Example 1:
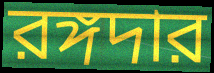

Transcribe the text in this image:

রঙ্গদার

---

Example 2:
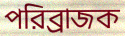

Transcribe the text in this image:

পরিব্রাজক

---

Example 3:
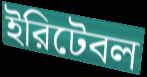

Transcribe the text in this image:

ইরিটেবল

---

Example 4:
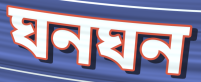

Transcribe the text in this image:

ঘনঘন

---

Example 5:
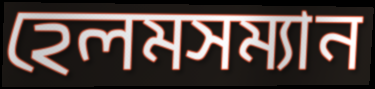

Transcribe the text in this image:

হেলমসম্যান